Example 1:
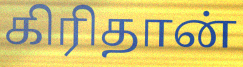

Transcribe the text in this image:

கிரிதான்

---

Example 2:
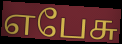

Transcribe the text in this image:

எபேசு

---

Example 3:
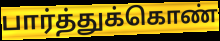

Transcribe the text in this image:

பார்த்துக்கொண்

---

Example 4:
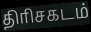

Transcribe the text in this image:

திரிசகடம்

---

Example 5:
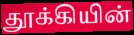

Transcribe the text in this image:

தூக்கியின்